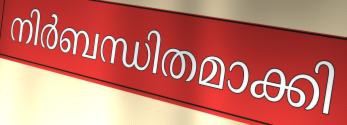
നിർബന്ധിതമാക്കി